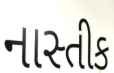
નાસ્તીક